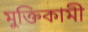
মুক্তিকামী